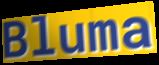
Bluma